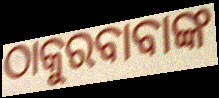
ଠାକୁରବାବାଙ୍କ